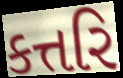
કત્તરિ